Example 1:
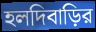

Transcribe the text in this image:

হলদিবাড়ির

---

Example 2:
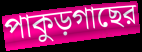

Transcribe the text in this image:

পাকুড়গাছের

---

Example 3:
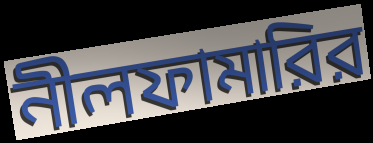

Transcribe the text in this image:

নীলফামারির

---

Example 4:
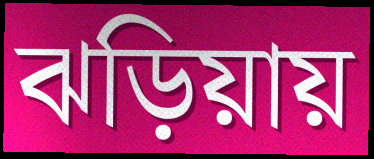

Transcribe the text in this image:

ঝড়িয়ায়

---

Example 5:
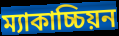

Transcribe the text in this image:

ম্যাকাচ্চিয়ন